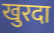
खुरदा